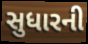
સુધારની